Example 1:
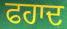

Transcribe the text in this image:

ਫਹਾਦ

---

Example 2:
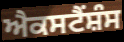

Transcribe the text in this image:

ਐਕਸਟੈਂਸ਼ੰਸ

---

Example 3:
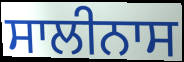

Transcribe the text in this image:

ਸਾਲੀਨਾਸ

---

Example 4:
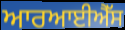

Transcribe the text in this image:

ਆਰਆਈਐੱਸ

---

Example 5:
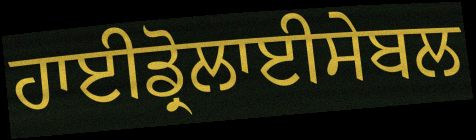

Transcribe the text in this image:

ਹਾਈਡ੍ਰੋਲਾਈਸੇਬਲ